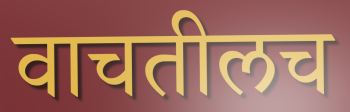
वाचतीलच